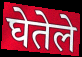
घेतेले